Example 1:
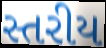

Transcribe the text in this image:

સ્તરીય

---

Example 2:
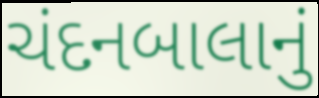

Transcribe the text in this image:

ચંદનબાલાનું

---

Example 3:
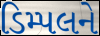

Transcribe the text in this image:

ડિમ્પલને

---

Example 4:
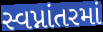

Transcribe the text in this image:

સ્વપ્નાંતરમાં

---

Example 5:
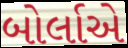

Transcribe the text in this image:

બોર્લાએ